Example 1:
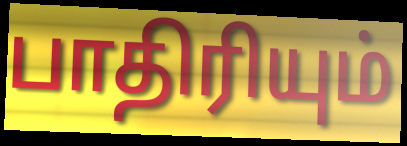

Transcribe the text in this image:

பாதிரியும்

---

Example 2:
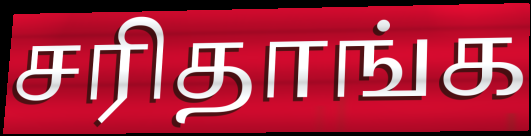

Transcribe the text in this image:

சரிதாங்க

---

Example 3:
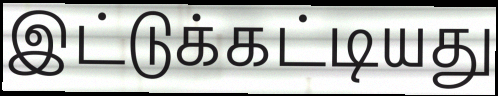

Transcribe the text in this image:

இட்டுக்கட்டியது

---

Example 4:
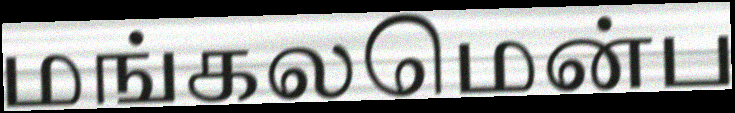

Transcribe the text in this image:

மங்கலமென்ப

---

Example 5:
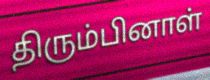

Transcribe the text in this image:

திரும்பினாள்